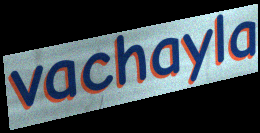
vachayla